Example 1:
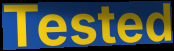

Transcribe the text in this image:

Tested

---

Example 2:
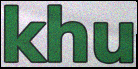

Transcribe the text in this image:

khu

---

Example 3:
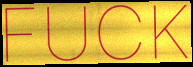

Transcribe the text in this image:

FUCK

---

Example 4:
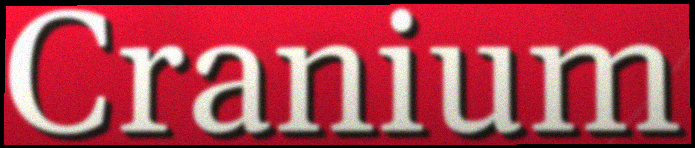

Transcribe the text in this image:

Cranium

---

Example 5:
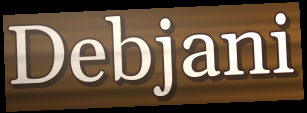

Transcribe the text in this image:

Debjani